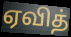
ஏவித்